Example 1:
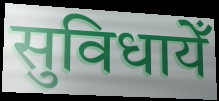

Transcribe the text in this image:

सुविधायेँ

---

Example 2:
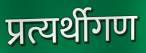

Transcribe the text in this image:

प्रत्यर्थीगण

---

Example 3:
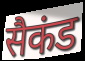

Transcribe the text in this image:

सैकंड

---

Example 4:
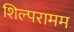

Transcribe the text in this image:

शिल्परामम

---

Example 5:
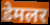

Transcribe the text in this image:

डेमलर